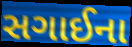
સગાઈના